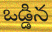
ఒడ్డిన